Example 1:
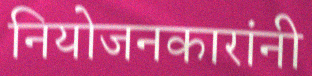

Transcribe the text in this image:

नियोजनकारांनी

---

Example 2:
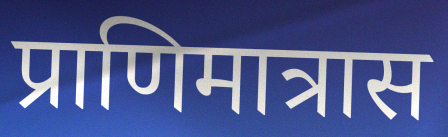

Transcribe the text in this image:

प्राणिमात्रास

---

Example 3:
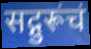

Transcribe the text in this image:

सद्गुरूंचं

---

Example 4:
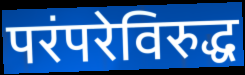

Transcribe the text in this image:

परंपरेविरुद्ध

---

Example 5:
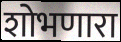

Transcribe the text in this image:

शोभणारा